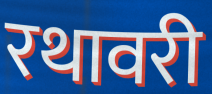
रथावरी